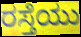
ರಸ್ತೆಯು